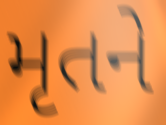
મૃતને